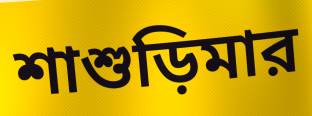
শাশুড়িমার